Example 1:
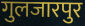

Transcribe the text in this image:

गुलजारपुर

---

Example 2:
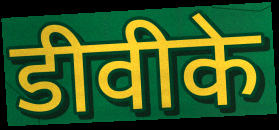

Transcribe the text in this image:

डीवीके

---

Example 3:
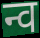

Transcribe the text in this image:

न्व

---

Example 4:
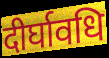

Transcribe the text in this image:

दीर्घावधि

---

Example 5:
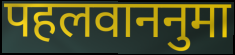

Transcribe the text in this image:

पहलवाननुमा